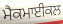
ਮੈਕਮਾਈਕਲ